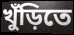
খুঁড়িতে